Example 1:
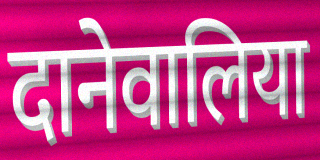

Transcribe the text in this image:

दानेवालिया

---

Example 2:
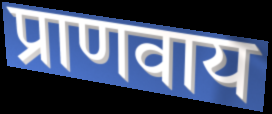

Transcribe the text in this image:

प्राणवाय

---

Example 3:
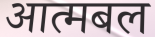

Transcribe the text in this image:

आत्मबल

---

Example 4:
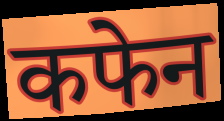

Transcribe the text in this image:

कफेन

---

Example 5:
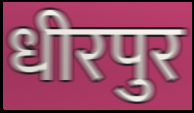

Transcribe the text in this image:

धीरपुर